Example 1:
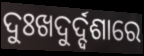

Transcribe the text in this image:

ଦୁଃଖଦୁର୍ଦ୍ଦଶାରେ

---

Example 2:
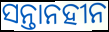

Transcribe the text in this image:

ସନ୍ତାନହୀନ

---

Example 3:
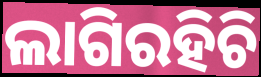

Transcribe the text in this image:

ଲାଗିରହିଚି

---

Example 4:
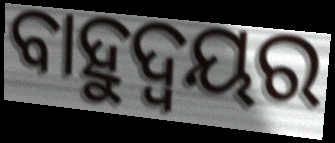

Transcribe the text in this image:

ବାହୁଦ୍ୱୟର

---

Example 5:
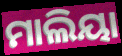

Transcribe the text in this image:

ମାଲିୟା